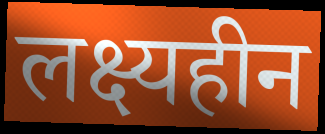
लक्ष्यहीन